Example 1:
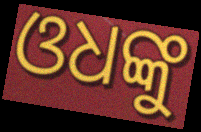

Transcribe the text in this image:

ଓଧଙ୍କୁ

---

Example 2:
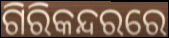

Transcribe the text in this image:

ଗିରିକନ୍ଦରରେ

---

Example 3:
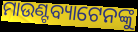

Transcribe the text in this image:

ମାଉଣ୍ଟବ୍ୟାଟେନଙ୍କୁ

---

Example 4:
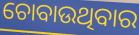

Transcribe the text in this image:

ଚୋବାଉଥିବାର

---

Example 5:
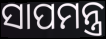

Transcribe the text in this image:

ସାପମନ୍ତ୍ର